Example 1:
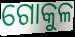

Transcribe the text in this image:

ଗୋକୁଳ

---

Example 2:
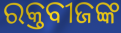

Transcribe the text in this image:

ରକ୍ତବୀଜଙ୍କ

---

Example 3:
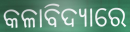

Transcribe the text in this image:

କଳାବିଦ୍ୟାରେ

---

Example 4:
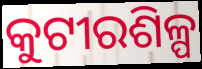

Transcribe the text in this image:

କୁଟୀରଶିଳ୍ପ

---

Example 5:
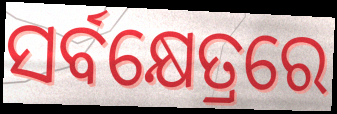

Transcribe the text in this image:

ସର୍ବକ୍ଷେତ୍ରରେ